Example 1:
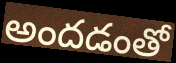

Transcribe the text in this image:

అందడంతో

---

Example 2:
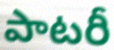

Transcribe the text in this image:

పాటరీ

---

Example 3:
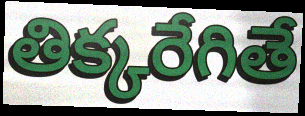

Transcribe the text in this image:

తిక్కరేగితే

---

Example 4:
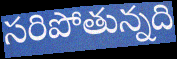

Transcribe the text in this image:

సరిపోతున్నది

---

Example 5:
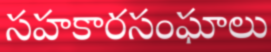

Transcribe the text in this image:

సహకారసంఘాలు